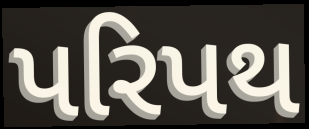
પરિપથ